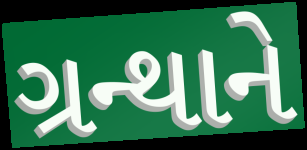
ગ્રન્થાને